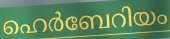
ഹെർബേറിയം